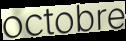
octobre